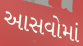
આસવોમાં